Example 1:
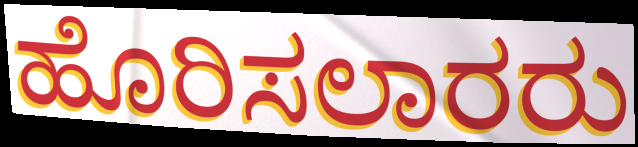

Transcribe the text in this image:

ಹೊರಿಸಲಾರರು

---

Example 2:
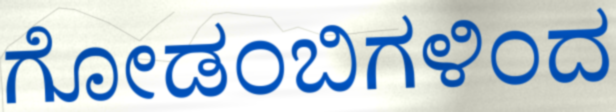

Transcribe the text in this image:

ಗೋಡಂಬಿಗಳಿಂದ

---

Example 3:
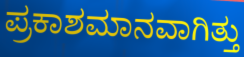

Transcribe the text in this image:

ಪ್ರಕಾಶಮಾನವಾಗಿತ್ತು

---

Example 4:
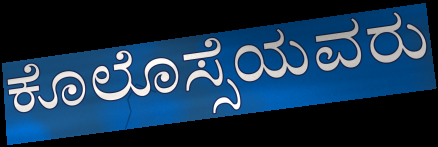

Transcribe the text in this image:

ಕೊಲೊಸ್ಸೆಯವರು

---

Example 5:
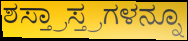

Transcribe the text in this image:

ಶಸ್ತ್ರಾಸ್ತ್ರಗಳನ್ನೂ